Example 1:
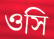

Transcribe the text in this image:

ওসি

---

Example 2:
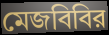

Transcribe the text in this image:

মেজবিবির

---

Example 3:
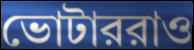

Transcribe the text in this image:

ভোটাররাও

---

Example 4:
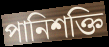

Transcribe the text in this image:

পানিশক্তি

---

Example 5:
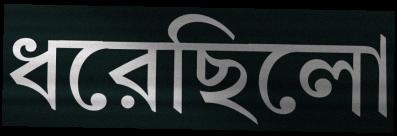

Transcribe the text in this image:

ধরেছিলো